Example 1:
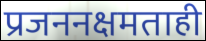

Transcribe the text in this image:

प्रजननक्षमताही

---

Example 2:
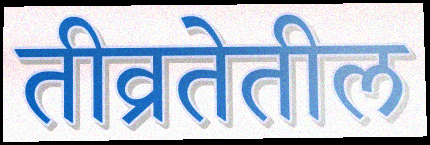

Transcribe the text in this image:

तीव्रतेतील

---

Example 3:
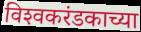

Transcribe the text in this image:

विश्‍वकरंडकाच्या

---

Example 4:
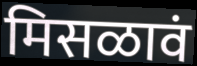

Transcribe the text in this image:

मिसळावं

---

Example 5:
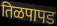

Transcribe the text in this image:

तिळपापड